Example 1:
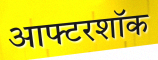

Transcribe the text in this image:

आफ्टरशॉक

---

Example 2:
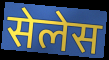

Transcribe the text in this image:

सेलेस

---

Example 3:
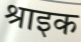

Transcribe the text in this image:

श्राइक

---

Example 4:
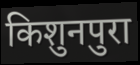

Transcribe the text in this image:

किशुनपुरा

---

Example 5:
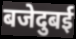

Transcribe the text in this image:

बजेदुबई